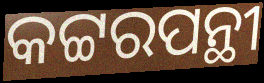
କଟ୍ଟରପନ୍ଥୀ